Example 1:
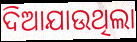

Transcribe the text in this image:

ଦିଆଯାଉଥିଲା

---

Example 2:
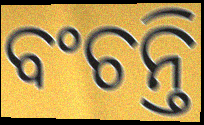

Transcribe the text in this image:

ବଂଚନ୍ତି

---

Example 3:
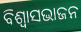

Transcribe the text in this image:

ବିଶ୍ଵାସଭାଜନ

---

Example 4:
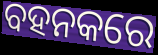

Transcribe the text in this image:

ବହନକରେ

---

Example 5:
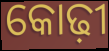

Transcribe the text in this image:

କୋଢ଼ୀ